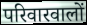
परिवारवालों